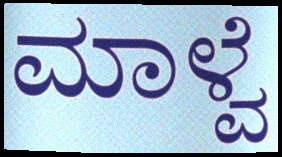
ಮಾಳ್ವೆ